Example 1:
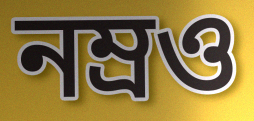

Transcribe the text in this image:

নম্রও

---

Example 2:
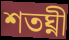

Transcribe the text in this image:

শতঘ্নী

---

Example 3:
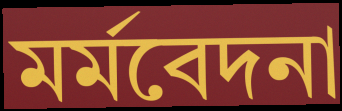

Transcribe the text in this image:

মর্মবেদনা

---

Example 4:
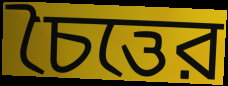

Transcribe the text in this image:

চৈত্তের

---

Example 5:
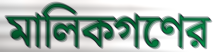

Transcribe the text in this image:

মালিকগণের